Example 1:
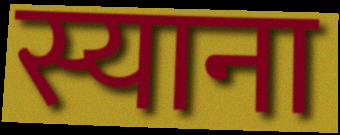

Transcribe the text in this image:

स्याना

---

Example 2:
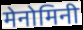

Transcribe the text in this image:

मेनोमिनी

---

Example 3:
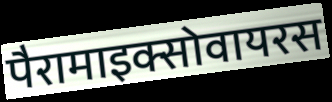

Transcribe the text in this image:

पैरामाइक्सोवायरस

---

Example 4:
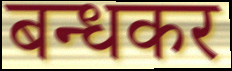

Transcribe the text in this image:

बन्धकर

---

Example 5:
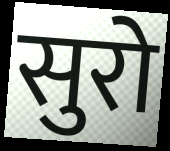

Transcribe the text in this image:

सुरो